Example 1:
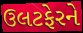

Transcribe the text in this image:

ઉલટફેરને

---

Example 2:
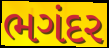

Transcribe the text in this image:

ભગંદર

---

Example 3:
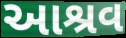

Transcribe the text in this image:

આશ્રવ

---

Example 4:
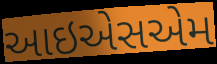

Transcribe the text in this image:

આઇએસએમ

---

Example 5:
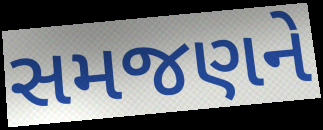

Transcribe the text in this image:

સમજણને